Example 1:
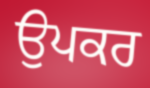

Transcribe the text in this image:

ਉਪਕਰ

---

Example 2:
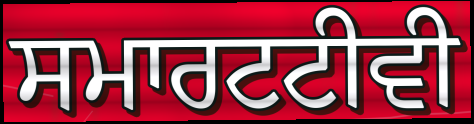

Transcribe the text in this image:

ਸਮਾਰਟਟੀਵੀ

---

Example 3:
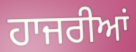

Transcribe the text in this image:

ਹਾਜਰੀਆਂ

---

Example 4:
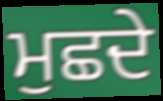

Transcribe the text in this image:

ਮੁਛਦੇ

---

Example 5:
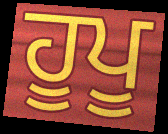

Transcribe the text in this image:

ਹੂਪੂ